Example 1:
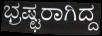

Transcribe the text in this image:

ಭ್ರಷ್ಟರಾಗಿದ್ದ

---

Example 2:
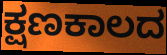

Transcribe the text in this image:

ಕ್ಷಣಕಾಲದ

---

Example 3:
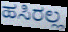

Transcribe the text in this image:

ಹಸಿರಲ್ಲ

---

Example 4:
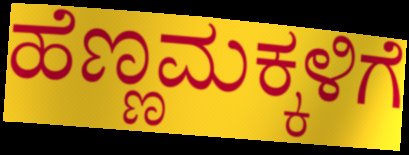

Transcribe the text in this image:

ಹೆಣ್ಣಮಕ್ಕಳಿಗೆ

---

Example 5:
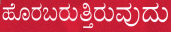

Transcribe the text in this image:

ಹೊರಬರುತ್ತಿರುವುದು